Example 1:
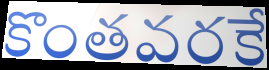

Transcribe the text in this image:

కొంతవరకే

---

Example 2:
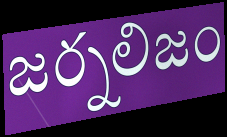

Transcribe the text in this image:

జర్నలిజం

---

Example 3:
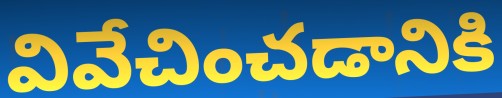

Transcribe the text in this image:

వివేచించడానికి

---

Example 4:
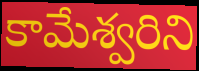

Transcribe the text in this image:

కామేశ్వరిని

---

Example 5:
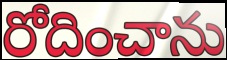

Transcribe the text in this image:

రోదించాను